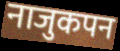
नाजुकपन